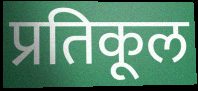
प्रतिकूल